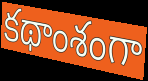
కథాంశంగా